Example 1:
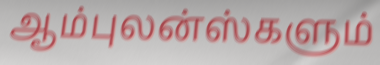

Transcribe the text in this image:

ஆம்புலன்ஸ்களும்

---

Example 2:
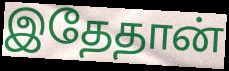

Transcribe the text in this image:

இதேதான்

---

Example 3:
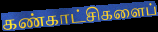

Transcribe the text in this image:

கண்காட்சிகளைப்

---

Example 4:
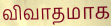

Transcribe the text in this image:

விவாதமாக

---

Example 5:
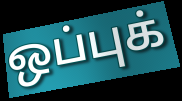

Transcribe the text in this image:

ஒப்புக்